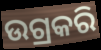
ଉଗ୍ରକରି